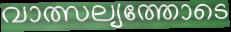
വാത്സല്യത്തോടെ